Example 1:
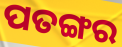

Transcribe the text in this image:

ପତଙ୍ଗର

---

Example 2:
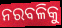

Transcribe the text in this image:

ନରବଳିକୁ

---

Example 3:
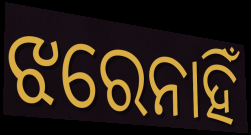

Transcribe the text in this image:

ଝରେନାହିଁ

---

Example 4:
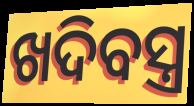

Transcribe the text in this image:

ଖଦିବସ୍ତ୍ର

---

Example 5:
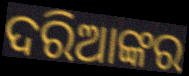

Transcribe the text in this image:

ଦରିଆଙ୍କର